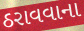
ઠરાવવાના